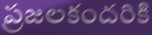
ప్రజలకందరికి